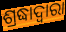
ଶ୍ରଦ୍ଧାଦ୍ୱାରା